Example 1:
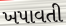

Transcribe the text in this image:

ખપાવતી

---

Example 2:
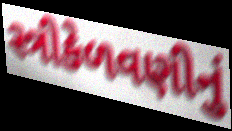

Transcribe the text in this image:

સ્ત્રીકેળવણીનું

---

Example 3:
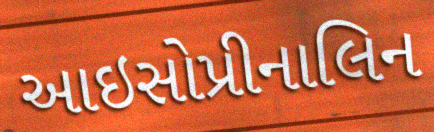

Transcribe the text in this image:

આઇસોપ્રીનાલિન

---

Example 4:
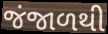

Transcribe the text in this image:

જંજાળથી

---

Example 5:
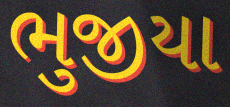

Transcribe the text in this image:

ભુજીયા